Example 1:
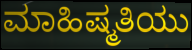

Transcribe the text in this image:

ಮಾಹಿಷ್ಮತಿಯು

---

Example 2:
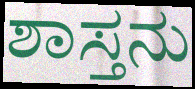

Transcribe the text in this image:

ಶಾಸ್ತನು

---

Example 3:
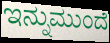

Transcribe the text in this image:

ಇನ್ನುಮುಂದೆ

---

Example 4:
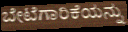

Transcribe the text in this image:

ಬೇಟೆಗಾರಿಕೆಯನ್ನು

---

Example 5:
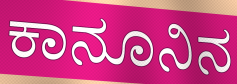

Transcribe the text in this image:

ಕಾನೂನಿನ